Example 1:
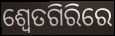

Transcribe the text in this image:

ଶ୍ୱେତଗିରିରେ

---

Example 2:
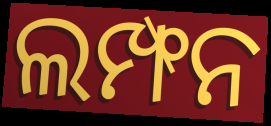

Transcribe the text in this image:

ଲମ୍ଫନ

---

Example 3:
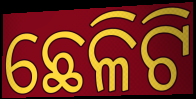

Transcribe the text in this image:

ଛେଳିଟି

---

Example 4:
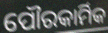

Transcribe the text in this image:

ପୌରକାର୍ମିକ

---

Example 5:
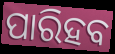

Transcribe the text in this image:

ପାରିହବ